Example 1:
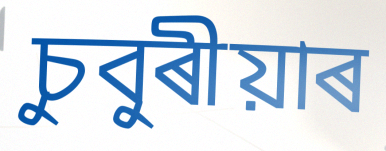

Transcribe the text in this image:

চুবুৰীয়াৰ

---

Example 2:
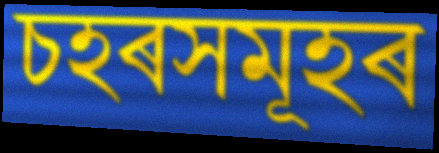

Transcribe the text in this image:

চহৰসমূহৰ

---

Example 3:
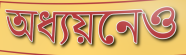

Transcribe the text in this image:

অধ্যয়নেও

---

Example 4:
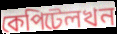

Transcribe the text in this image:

কেপিটেলখন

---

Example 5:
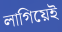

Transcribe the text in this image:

লাগিয়েই